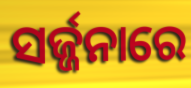
ସର୍ଜ୍ଜନାରେ